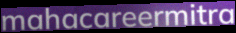
mahacareermitra